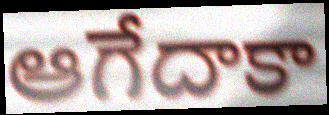
ఆగేదాకా